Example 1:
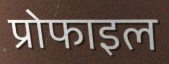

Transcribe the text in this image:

प्रोफाइल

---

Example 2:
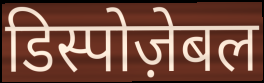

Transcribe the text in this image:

डिस्पोज़ेबल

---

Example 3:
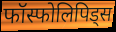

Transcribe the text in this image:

फॉस्फोलिपिड्स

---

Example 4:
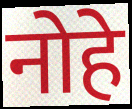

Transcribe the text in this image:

नोहे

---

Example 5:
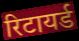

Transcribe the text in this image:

रिटायर्ड